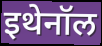
इथेनॉल